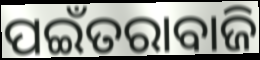
ପଇଁତରାବାଜି